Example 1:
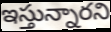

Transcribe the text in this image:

ఇస్తున్నారని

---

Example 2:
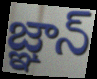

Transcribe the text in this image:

జ్ఞాన్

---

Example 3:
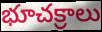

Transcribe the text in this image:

భూచక్రాలు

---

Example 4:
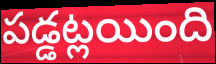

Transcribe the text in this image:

పడ్డట్లయింది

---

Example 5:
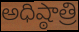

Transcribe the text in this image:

అధిష్ఠాత్రి